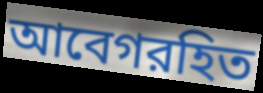
আবেগরহিত